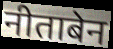
नीताबेन